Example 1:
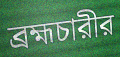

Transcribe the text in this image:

ব্রহ্মচারীর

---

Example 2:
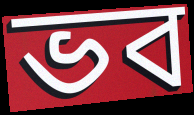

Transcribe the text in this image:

ভব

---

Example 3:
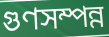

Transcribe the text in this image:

গুণসম্পন্ন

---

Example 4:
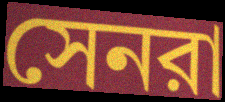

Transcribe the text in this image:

সেনরা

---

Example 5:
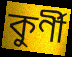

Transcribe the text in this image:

কুর্ণী